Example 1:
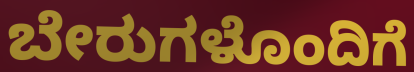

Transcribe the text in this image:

ಬೇರುಗಳೊಂದಿಗೆ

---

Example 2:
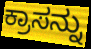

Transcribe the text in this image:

ಕ್ರಾಸನ್ನು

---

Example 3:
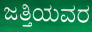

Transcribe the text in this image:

ಜತ್ತಿಯವರ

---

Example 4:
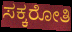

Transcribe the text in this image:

ಸಕ್ಕರೋತಿ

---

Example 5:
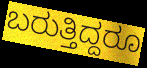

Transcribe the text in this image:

ಬರುತ್ತಿದ್ದರೂ